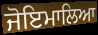
ਜੋਇਮਾਲਿਆ